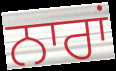
ਨਾਰਾਂ